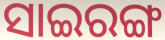
ସାଇରଙ୍ଗ